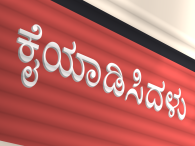
ಕೈಯಾಡಿಸಿದಳು